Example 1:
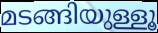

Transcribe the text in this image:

മടങ്ങിയുള്ളൂ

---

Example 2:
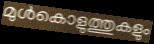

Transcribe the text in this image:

മുൾകൊളുത്തുകളും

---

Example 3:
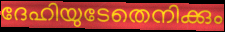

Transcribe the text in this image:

ദേഹിയുടേതെനിക്കും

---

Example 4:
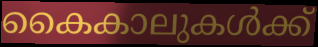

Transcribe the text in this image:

കൈകാലുകൾക്ക്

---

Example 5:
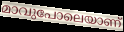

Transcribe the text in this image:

മാവുപോലെയാണ്